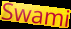
Swami